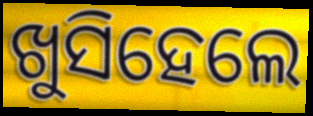
ଖୁସିହେଲେ